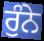
ਰੁੰਨੇ